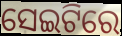
ସେଇଟିରେ